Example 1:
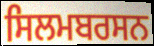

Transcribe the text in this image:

ਸਿਲਮਬਰਸਨ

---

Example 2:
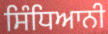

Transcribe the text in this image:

ਸਿੰਧਿਆਨੀ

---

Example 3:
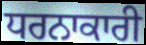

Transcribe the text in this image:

ਧਰਨਾਕਾਰੀ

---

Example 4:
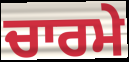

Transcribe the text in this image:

ਚਾਰਮੇ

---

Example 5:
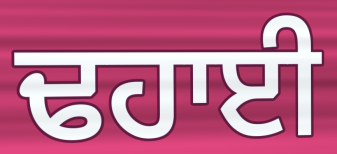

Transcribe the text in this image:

ਢਹਾਈ